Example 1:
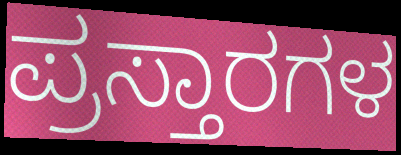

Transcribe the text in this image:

ಪ್ರಸ್ತಾರಗಳ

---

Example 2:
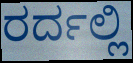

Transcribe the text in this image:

ರರ್ದಲ್ಲಿ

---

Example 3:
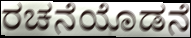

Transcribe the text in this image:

ರಚನೆಯೊಡನೆ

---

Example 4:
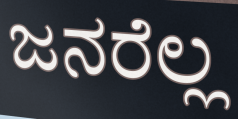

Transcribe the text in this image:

ಜನರೆಲ್ಲ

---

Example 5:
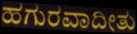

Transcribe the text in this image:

ಹಗುರವಾದೀತು